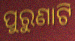
ପୁରୁଣାଟି